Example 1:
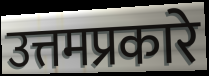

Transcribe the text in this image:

उत्तमप्रकारे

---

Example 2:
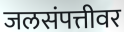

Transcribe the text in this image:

जलसंपत्तीवर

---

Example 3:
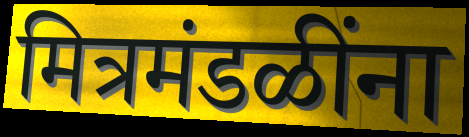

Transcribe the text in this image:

मित्रमंडळींना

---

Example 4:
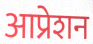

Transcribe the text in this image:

आप्रेशन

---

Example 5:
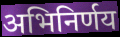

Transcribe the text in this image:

अभिनिर्णय